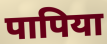
पापिया